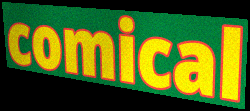
comical